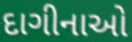
દાગીનાઓ